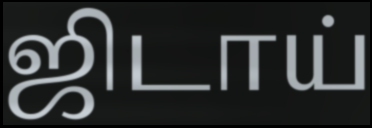
ஜிடாய்